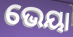
ଭେୟା